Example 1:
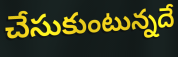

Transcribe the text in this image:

చేసుకుంటున్నదే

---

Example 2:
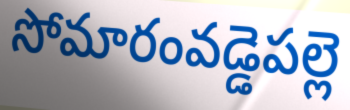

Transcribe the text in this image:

సోమారంవడ్డెపల్లె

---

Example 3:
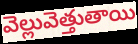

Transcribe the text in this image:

వెల్లువెత్తుతాయి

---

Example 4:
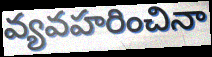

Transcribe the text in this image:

వ్యవహరించినా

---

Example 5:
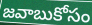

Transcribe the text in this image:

జవాబుకోసం